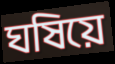
ঘষিয়ে